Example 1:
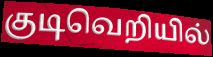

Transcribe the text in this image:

குடிவெறியில்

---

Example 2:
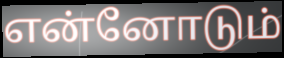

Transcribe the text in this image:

என்னோடும்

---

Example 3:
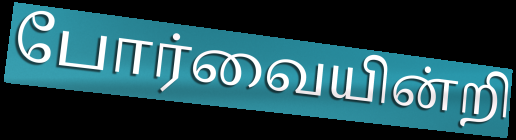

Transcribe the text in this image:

போர்வையின்றி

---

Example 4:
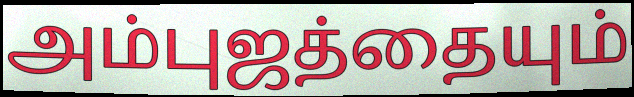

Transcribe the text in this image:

அம்புஜத்தையும்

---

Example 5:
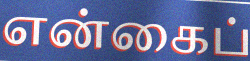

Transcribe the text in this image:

என்கைப்